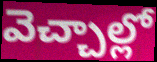
వెచ్చాల్లో